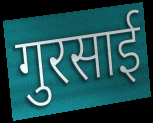
गुरसाई